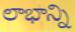
లాభాన్ని